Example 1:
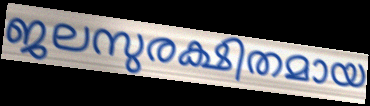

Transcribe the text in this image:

ജലസുരക്ഷിതമായ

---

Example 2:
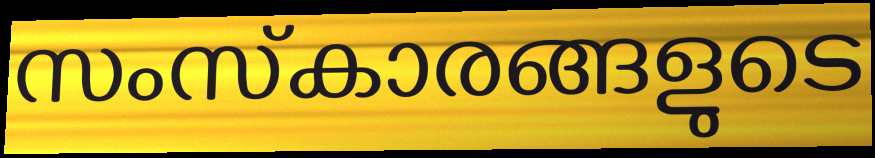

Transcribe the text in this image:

സംസ്‌കാരങ്ങളുടെ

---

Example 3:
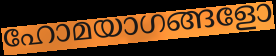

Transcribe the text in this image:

ഹോമയാഗങ്ങളോ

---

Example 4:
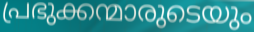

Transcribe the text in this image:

പ്രഭുക്കന്മാരുടെയും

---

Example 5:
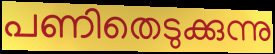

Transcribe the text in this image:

പണിതെടുക്കുന്നു